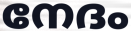
നേദം